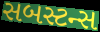
સબસ્ટન્સ